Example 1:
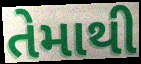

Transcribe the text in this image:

તેમાથી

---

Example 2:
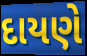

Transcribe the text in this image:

દાયણે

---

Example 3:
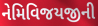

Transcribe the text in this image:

નેમિવિજયજીની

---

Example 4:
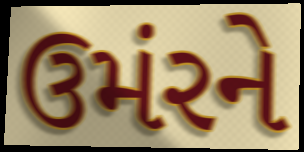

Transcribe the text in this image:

ઉમંરને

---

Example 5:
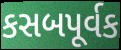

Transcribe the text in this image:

કસબપૂર્વક